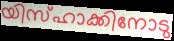
യിസ്ഹാക്കിനോടു